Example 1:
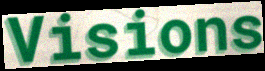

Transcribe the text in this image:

Visions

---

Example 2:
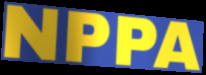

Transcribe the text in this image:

NPPA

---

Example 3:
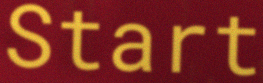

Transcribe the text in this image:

Start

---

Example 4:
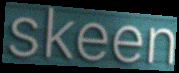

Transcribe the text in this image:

skeen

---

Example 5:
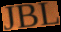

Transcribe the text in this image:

JBL